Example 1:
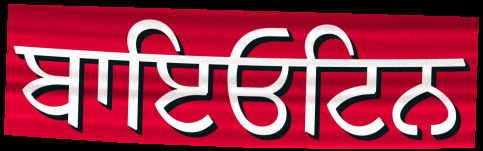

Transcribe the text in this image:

ਬਾਇਓਟਿਨ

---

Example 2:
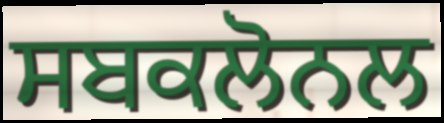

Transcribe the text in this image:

ਸਬਕਲੋਨਲ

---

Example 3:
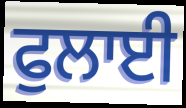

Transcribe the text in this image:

ਫੁਲਾਈ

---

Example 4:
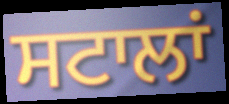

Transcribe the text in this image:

ਸਟਾਲਾਂ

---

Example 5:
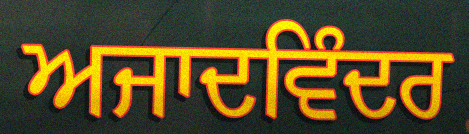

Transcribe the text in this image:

ਅਜਾਦਵਿੰਦਰ